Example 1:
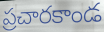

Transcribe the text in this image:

ప్రచారకాండ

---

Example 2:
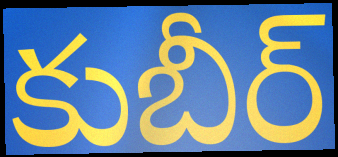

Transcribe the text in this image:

కుబీర్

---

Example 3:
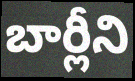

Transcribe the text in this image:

బార్లీని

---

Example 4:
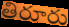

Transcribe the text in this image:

తిరూరు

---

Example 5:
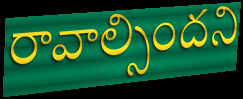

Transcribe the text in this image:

రావాల్సిందని